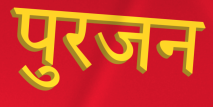
पुरजन